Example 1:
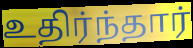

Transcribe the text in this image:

உதிர்ந்தார்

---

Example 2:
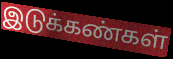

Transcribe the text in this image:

இடுக்கண்கள்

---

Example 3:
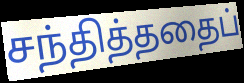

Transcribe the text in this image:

சந்தித்ததைப்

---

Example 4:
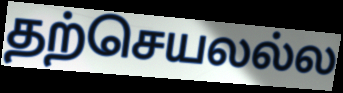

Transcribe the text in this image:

தற்செயலல்ல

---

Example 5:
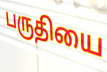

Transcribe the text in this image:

பருதியை